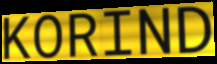
KORIND